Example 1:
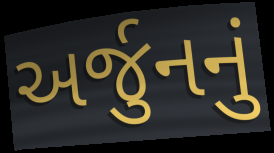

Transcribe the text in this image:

અર્જુનનું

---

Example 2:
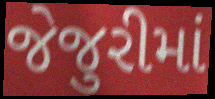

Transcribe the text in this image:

જેજુરીમાં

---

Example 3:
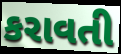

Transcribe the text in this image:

કરાવતી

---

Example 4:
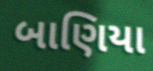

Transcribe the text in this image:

બાણિયા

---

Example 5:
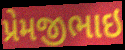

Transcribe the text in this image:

પ્રેમજીભાઇ